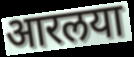
आरलया